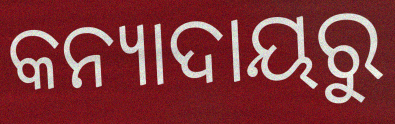
କନ୍ୟାଦାୟରୁ